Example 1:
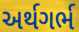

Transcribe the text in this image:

અર્થગર્ભ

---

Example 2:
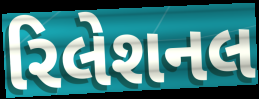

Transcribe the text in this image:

રિલેશનલ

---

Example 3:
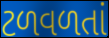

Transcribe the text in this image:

ટળવળતાં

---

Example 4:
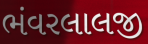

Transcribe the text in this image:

ભંવરલાલજી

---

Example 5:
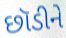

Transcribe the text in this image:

છૉડીને